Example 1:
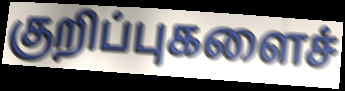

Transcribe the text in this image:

குறிப்புகளைச்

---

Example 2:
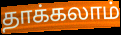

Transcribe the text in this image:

தாக்கலாம்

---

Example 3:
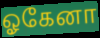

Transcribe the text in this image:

ஓகேனா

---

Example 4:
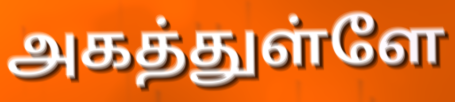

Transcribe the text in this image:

அகத்துள்ளே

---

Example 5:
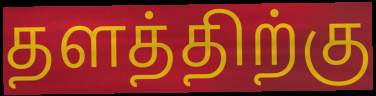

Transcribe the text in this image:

தளத்திற்கு